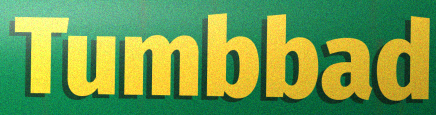
Tumbbad